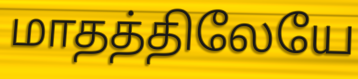
மாதத்திலேயே